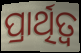
ପ୍ରାର୍ଥିତ୍ୱ